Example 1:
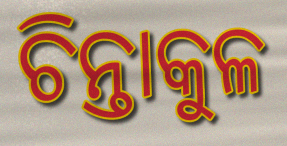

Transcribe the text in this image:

ଚିନ୍ତାକୁଳ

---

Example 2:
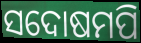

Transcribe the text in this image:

ସଦୋଷମପି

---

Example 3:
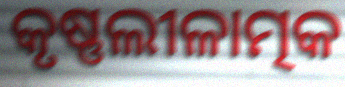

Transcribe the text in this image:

କୃଷ୍ଣଲୀଳାତ୍ମକ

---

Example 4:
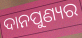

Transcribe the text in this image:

ଦାନପୁଣ୍ୟର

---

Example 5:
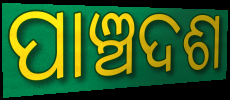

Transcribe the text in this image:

ପାଞ୍ଚଦଶ